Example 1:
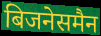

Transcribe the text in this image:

बिजनेसमैन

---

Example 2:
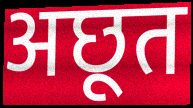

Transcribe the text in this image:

अछूत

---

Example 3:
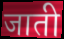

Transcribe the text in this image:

जाती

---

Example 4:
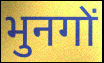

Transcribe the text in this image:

भुनगों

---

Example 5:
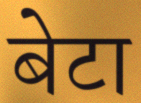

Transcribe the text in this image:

बेटा